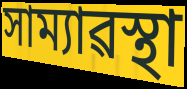
সাম্যাৱস্থা